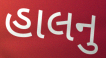
હાલનુ